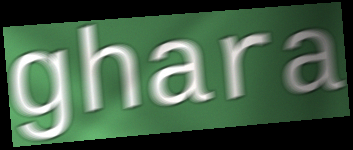
ghara